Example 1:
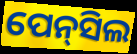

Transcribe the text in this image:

ପେନ୍‍ସିଲ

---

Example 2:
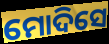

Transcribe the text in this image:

ମୋଦିସେ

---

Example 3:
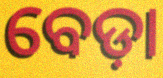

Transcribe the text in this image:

ବେଡ଼ା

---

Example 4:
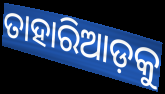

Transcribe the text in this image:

ତାହାରିଆଡ଼କୁ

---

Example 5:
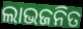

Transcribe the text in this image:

ଲାଭଜନିତ